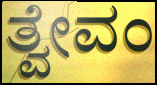
ತ್ವೇವಂ